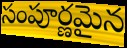
సంపూర్ణమైన